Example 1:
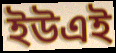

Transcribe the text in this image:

ইউএই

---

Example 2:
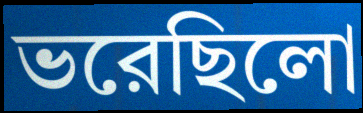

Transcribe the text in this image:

ভরেছিলো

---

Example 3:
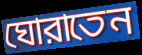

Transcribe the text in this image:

ঘোরাতেন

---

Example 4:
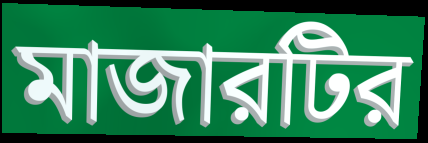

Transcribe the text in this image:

মাজারটির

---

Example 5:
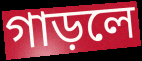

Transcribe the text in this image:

গাড়লে